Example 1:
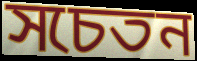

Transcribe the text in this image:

সচেতন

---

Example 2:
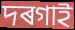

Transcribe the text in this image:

দৰগাই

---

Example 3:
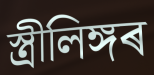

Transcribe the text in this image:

স্ত্ৰীলিঙ্গৰ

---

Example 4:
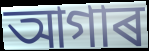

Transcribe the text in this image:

আগাৰ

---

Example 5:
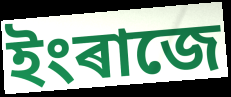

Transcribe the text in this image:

ইংৰাজে